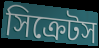
সিক্রেটস